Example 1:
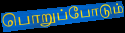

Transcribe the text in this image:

பொறுப்போடும்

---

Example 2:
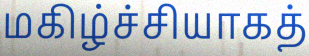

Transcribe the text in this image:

மகிழ்ச்சியாகத்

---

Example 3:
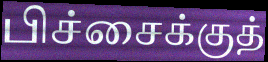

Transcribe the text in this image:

பிச்சைக்குத்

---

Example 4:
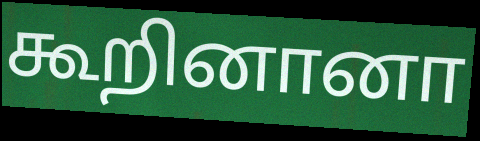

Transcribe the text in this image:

கூறினானா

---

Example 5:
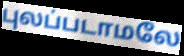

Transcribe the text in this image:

புலப்படாமலே